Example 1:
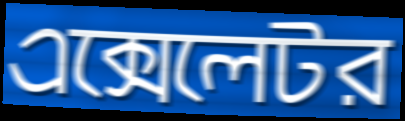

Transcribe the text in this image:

এক্সেলেটর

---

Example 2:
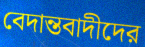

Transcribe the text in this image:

বেদান্তবাদীদের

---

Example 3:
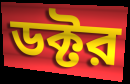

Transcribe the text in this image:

ডক্টর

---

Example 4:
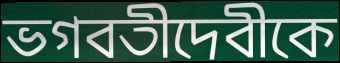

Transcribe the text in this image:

ভগবতীদেবীকে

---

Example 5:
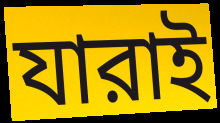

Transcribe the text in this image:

যারাই